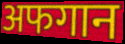
अफगान